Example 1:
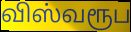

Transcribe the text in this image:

விஸ்வரூப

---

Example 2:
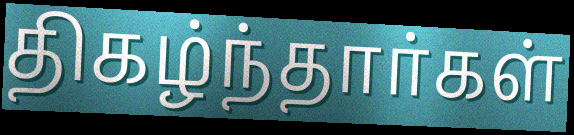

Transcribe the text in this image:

திகழ்ந்தார்கள்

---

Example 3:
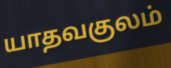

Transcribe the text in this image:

யாதவகுலம்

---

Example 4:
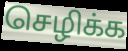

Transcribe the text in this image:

செழிக்க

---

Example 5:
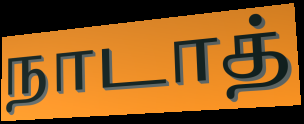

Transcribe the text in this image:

நாடாத்